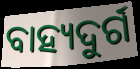
ବାହ୍ୟଦୁର୍ଗ